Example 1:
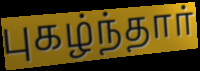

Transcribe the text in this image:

புகழ்ந்தார்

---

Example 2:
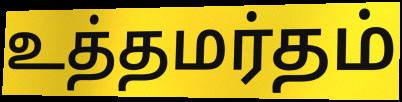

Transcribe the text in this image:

உத்தமர்தம்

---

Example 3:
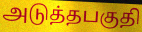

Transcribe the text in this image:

அடுத்தபகுதி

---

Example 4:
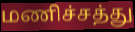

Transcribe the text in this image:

மணிச்சத்து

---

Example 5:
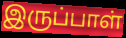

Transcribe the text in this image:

இருப்பாள்